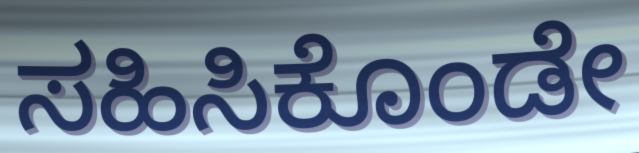
ಸಹಿಸಿಕೊಂಡೇ